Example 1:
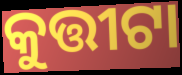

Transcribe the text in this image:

କୁତ୍ତୀଟା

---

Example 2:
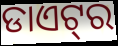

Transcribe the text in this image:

ଡାଏଟ୍‌ର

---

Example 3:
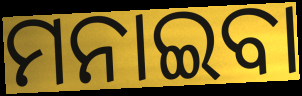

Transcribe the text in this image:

ମନାଇବା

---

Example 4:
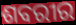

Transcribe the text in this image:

ଶବରୀର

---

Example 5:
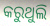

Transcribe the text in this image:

କରୁଥୁଲି